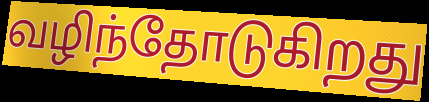
வழிந்தோடுகிறது